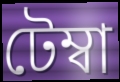
টেম্বা